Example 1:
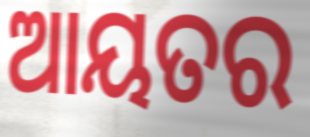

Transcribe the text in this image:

ଆୟତର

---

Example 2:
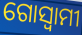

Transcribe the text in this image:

ଗୋସ୍ଵାମୀ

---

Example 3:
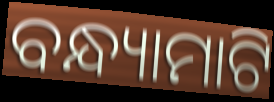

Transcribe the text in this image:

ବନ୍ଧ୍ୟାମାଟି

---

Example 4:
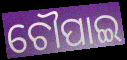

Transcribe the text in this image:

ଚୌପାଇ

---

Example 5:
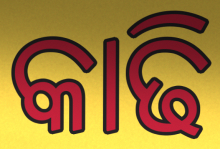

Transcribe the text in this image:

କାଢି